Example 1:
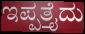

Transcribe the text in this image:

ಇಪ್ಪತ್ತೈದು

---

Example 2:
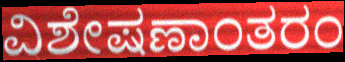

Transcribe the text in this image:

ವಿಶೇಷಣಾಂತರಂ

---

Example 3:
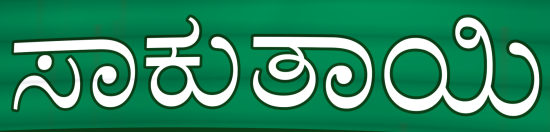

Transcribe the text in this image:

ಸಾಕುತಾಯಿ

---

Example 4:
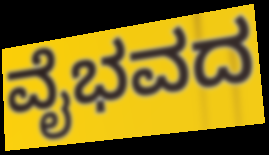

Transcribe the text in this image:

ವೈಭವದ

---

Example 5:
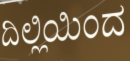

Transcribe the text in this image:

ದಿಲ್ಲಿಯಿಂದ